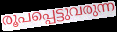
രൂപപ്പെട്ടുവരുന്ന